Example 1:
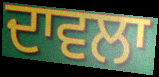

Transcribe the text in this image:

ਦਾਵਲਾ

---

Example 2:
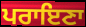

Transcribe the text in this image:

ਪਰਾਇਣਾ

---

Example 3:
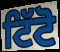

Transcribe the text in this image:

ਟਿੱਟੋ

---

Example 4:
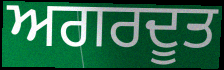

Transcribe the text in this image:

ਅਗਰਦੂਤ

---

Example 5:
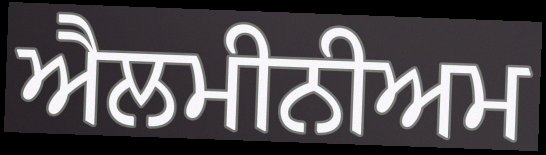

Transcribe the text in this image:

ਐਲਮੀਨੀਅਮ